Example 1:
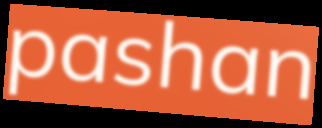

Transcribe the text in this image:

pashan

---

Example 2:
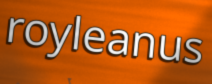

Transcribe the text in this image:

royleanus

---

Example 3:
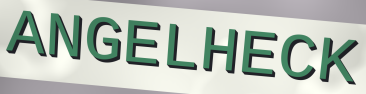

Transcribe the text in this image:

ANGELHECK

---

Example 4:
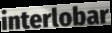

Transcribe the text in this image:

interlobar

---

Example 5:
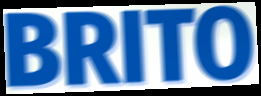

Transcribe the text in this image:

BRITO